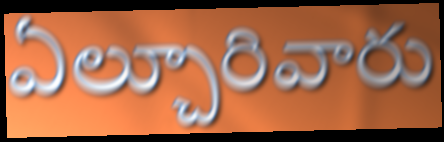
ఏల్చూరివారు